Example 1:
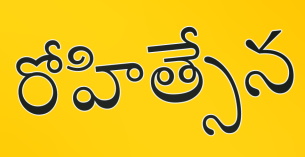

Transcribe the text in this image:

రోహిత్సేన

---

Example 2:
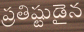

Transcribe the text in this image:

ప్రతిష్టుడైన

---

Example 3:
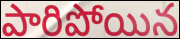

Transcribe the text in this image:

పారిపోయిన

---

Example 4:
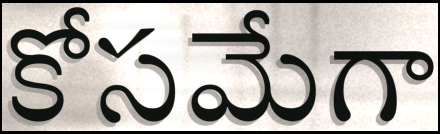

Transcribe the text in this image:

కోసమేగా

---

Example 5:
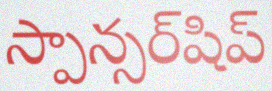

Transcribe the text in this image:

స్పాన్సర్‌షిప్